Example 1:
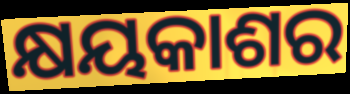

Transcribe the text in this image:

କ୍ଷୟକାଶର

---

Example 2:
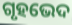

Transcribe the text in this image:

ଗୃହଭେଦ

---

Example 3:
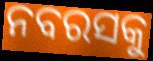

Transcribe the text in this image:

ନବରସକୁ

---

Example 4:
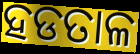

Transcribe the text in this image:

ହଡତାଳ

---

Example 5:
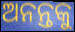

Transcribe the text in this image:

ଅନନ୍ତକୁ